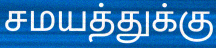
சமயத்துக்கு